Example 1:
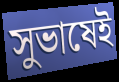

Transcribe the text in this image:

সুভাষেই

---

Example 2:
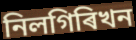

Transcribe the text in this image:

নিলগিৰিখন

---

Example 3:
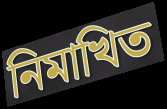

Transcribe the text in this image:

নিমাখিত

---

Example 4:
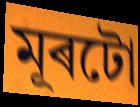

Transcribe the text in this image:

মূৰটো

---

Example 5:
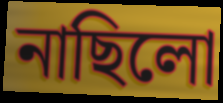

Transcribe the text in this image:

নাছিলো